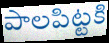
పాలపిట్టకి